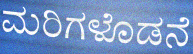
ಮರಿಗಳೊಡನೆ